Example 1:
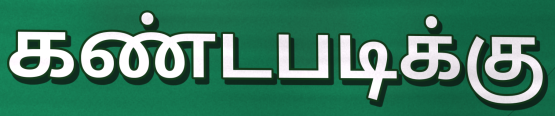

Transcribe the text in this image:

கண்டபடிக்கு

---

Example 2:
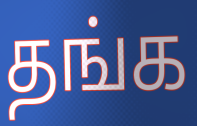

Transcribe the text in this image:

தங்க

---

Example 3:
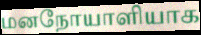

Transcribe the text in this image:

மனநோயாளியாக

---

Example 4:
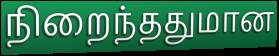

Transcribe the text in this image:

நிறைந்ததுமான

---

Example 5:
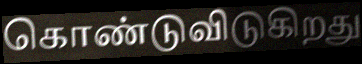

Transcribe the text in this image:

கொண்டுவிடுகிறது